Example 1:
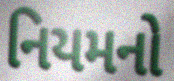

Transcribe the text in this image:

નિયમનો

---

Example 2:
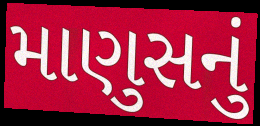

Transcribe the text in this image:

માણુસનું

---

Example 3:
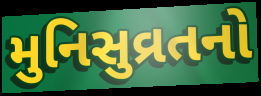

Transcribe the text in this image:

મુનિસુવ્રતનો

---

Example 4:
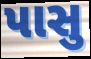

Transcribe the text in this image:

પાસુ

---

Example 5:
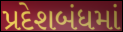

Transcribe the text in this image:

પ્રદેશબંધમાં